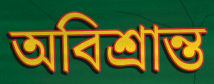
অবিশ্ৰান্ত